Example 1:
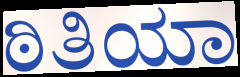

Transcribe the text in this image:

ಠಿತಿಯಾ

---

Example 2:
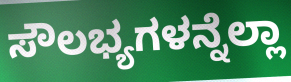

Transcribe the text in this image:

ಸೌಲಭ್ಯಗಳನ್ನೆಲ್ಲಾ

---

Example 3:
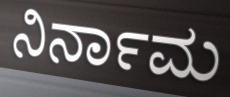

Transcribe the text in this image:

ನಿರ್ನಾಮ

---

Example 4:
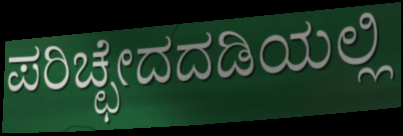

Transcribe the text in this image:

ಪರಿಚ್ಛೇದದಡಿಯಲ್ಲಿ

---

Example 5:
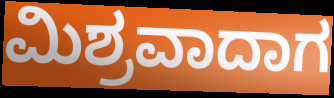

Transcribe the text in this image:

ಮಿಶ್ರವಾದಾಗ